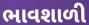
ભાવશાળી